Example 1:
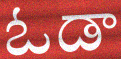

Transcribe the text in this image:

ఓడా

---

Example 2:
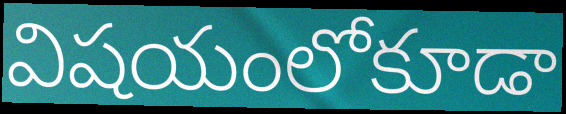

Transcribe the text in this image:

విషయంలోకూడా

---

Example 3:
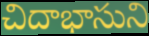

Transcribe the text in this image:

చిదాభాసుని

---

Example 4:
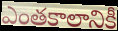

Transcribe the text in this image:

ఎంతకాలానికీ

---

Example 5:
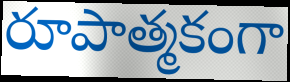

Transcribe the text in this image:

రూపాత్మకంగా